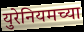
युरेनियमच्या